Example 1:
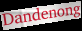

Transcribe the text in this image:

Dandenong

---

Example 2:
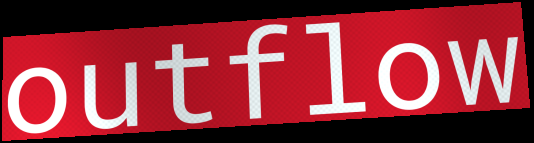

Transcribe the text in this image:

outflow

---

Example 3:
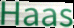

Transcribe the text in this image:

Haas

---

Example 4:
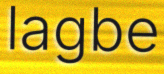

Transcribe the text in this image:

lagbe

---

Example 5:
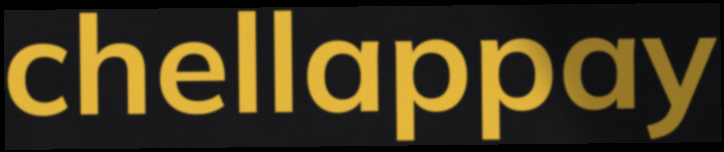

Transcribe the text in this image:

chellappay